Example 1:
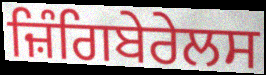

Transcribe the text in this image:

ਜ਼ਿੰਗਿਬੇਰੇਲਸ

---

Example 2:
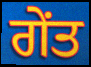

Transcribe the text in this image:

ਗੇਂਤ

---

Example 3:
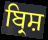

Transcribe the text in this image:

ਬ੍ਰਿਸ਼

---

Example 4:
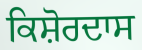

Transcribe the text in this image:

ਕਿਸ਼ੋਰਦਾਸ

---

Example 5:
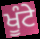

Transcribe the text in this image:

ਖੂੰਟੇ